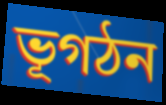
ভূগঠন